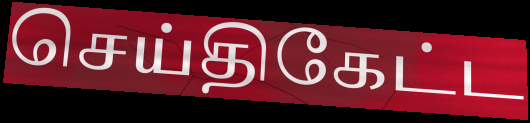
செய்திகேட்ட